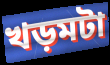
খড়মটা